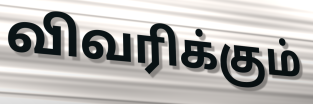
விவரிக்கும்